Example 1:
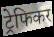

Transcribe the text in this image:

ट्रेफिकर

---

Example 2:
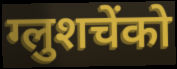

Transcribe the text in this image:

ग्लुशचेंको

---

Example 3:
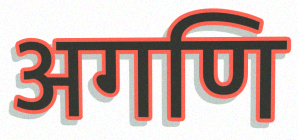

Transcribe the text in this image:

अगणि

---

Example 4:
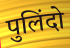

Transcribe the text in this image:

पुलिंदो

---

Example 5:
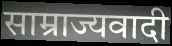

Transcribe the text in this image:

साम्राज्‍यवादी